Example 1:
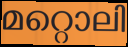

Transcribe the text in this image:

മറ്റൊലി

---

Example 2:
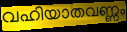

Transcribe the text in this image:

വഹിയാതവണ്ണം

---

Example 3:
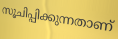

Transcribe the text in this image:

സൂചിപ്പിക്കുന്നതാണ്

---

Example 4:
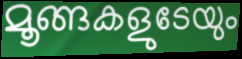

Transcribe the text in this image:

മൂങ്ങകളുടേയും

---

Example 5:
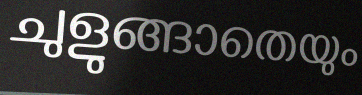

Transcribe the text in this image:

ചുളുങ്ങാതെയും